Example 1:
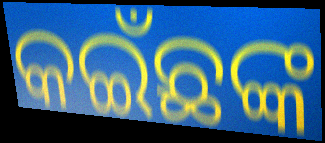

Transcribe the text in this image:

କଇଁଛଙ୍କ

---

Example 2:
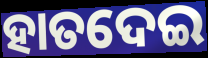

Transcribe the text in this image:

ହାତଦେଇ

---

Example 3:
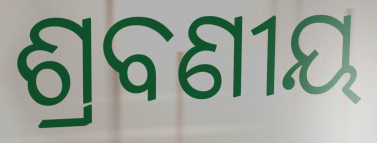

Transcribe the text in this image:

ଶ୍ରବଣୀୟ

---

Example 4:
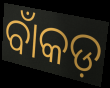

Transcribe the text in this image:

ବାଁକଡ଼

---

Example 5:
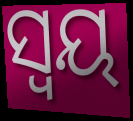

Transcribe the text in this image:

ସ୍ୱୟ